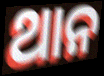
ଥାନ